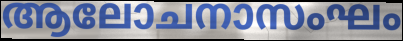
ആലോചനാസംഘം